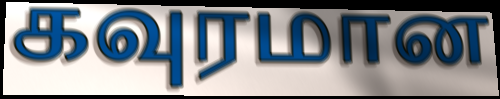
கவுரமான